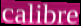
calibre